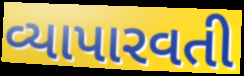
વ્યાપારવતી